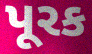
પૂરક